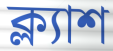
ক্ল্যাশ